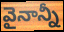
వైనాన్నీ